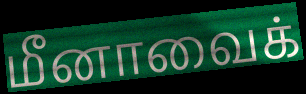
மீனாவைக்